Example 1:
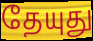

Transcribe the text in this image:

தேயுது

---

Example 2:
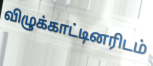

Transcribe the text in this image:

விழுக்காட்டினரிடம்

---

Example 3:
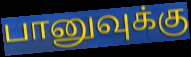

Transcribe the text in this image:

பானுவுக்கு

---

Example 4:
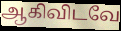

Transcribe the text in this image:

ஆகிவிடவே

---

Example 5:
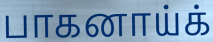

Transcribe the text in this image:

பாகனாய்க்